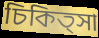
চিকিত্সা